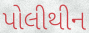
પોલીથીન